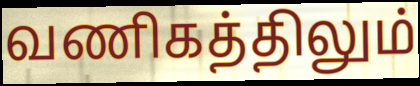
வணிகத்திலும்